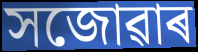
সজোৱাৰ